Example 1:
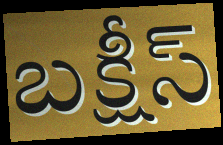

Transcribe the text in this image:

బక్షీస్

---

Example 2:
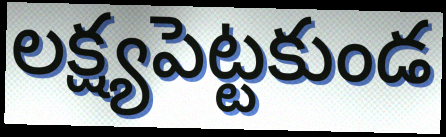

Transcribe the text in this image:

లక్ష్యపెట్టకుండ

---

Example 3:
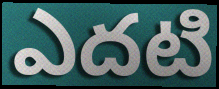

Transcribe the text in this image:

ఎదటి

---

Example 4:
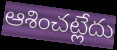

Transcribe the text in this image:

ఆశించట్లేదు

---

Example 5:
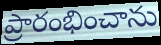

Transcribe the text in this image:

ప్రారంభించాను